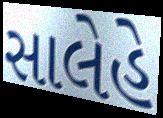
સાલેહે